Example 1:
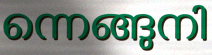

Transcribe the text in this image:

ന്നെങ്ങുനി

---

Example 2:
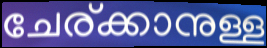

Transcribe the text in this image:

ചേര്ക്കാനുള്ള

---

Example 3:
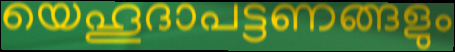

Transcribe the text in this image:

യെഹൂദാപട്ടണങ്ങളും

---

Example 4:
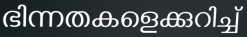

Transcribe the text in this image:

ഭിന്നതകളെക്കുറിച്ച്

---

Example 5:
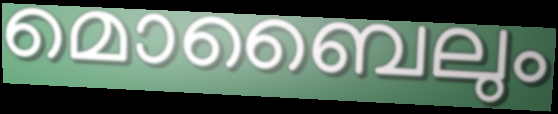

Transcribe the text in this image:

മൊബൈലും